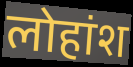
लोहांश